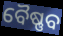
ବୈଷ୍ଣବ